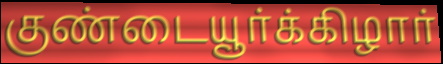
குண்டையூர்க்கிழார்